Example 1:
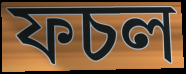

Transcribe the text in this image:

ফচল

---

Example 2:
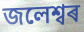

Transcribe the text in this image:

জলেশ্বৰ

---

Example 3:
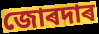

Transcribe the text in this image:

জোৰদাৰ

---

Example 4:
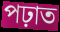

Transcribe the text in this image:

পঢ়াত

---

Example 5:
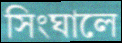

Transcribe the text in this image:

সিংঘালে